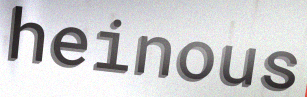
heinous